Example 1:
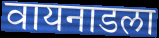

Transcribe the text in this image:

वायनाडला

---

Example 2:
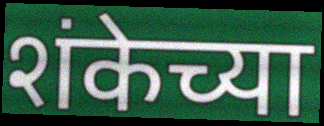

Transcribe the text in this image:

शंकेच्या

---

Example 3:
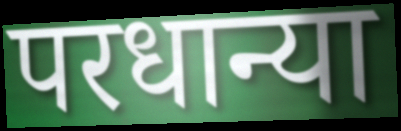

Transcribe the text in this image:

परधान्या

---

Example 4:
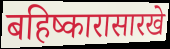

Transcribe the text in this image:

बहिष्कारासारखे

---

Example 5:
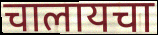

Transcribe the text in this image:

चालायचा